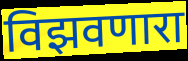
विझवणारा